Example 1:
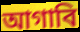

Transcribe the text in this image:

আগাবি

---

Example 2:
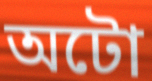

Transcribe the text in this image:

অটো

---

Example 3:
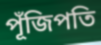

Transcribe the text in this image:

পূঁজিপতি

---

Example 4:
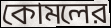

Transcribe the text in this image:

কোমলের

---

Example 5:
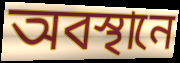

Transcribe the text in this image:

অবস্থানে